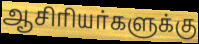
ஆசிரியர்களுக்கு